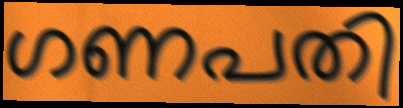
ഗണപതി